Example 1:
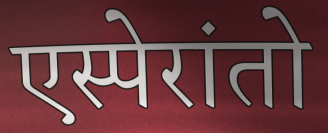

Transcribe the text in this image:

एस्पेरांतो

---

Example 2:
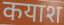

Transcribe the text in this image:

कयाश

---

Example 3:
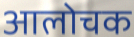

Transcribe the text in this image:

आलोचक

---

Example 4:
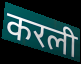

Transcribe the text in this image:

करली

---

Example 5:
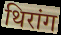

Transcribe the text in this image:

थिरांग